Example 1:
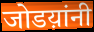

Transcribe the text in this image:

जोडय़ांनी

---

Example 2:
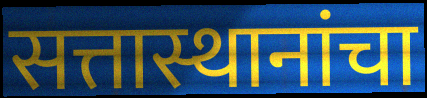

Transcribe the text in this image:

सत्तास्थानांचा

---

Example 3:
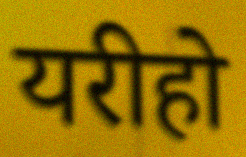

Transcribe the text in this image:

यरीहो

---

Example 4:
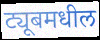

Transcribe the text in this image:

ट्यूबमधील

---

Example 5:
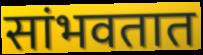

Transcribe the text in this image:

सांभवतात